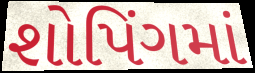
શોપિંગમાં